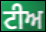
ਟੀਅ